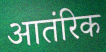
आतंरिक